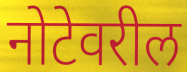
नोटेवरील